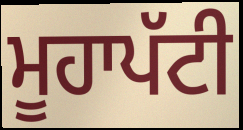
ਮੂਹਾਪੱਟੀ